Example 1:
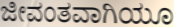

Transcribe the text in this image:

ಜೀವಂತವಾಗಿಯೂ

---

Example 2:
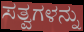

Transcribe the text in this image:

ಸತ್ವಗಳನ್ನು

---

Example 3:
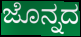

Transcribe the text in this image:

ಜೊನ್ನದ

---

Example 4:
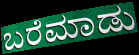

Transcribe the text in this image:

ಬರೆಮಾಡು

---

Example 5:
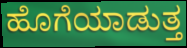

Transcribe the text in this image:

ಹೊಗೆಯಾಡುತ್ತ